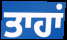
ਤਾਹਾਂ